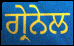
ਗ੍ਰੇਨੇਲ